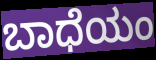
ಬಾಧೆಯಂ